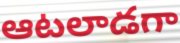
ఆటలాడగా